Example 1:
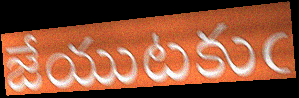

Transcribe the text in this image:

జేయుటకుఁ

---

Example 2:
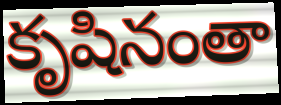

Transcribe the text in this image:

కృషినంతా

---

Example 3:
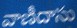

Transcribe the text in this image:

వాణీదాసు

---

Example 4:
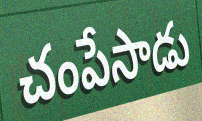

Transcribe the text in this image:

చంపేసాడు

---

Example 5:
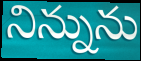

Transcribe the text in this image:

నిన్నును